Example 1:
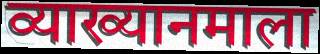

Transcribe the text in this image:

व्याख्यानमाला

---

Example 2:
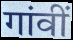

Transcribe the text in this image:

गांवीं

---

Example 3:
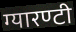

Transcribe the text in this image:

ग्यारण्टी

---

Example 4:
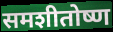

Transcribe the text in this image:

समशीतोष्ण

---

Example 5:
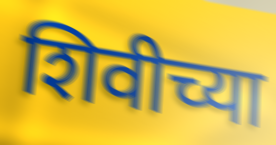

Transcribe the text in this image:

शिवीच्या